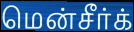
மென்சீர்க்